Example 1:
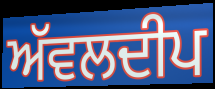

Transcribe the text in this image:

ਅੱਵਲਦੀਪ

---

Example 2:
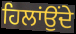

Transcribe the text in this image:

ਹਿਲਾਂਉਂਦੇ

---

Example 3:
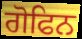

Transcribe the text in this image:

ਗੋਫਿਨ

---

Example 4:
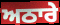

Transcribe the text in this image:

ਅਠਾਰੇ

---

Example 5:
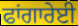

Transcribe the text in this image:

ਫਾਂਗਾਰੇਈ